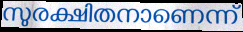
സുരക്ഷിതനാണെന്ന്